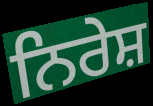
ਨਿਰੇਸ਼